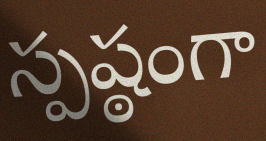
స్పష్ఠంగా